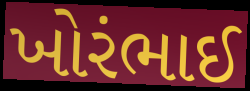
ખોરંભાઈ